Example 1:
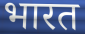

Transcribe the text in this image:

भारत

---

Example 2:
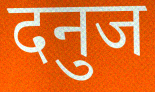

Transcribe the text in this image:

दनुज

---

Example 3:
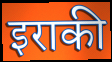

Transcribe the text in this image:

इराकी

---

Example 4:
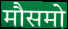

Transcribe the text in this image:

मौसमो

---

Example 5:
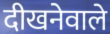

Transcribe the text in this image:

दीखनेवाले